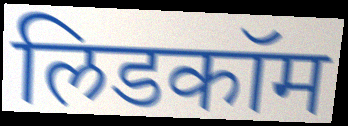
लिडकॉम